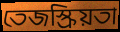
তেজস্ক্রিয়তা